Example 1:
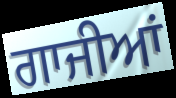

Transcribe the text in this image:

ਗਾਜੀਆਂ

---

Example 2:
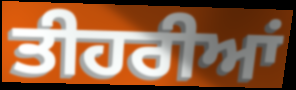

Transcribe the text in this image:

ਤੀਹਰੀਆਂ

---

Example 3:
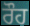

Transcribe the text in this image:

ਰੌਹ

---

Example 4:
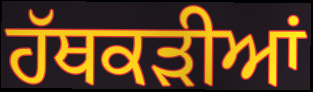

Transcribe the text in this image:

ਹੱਥਕੜੀਆਂ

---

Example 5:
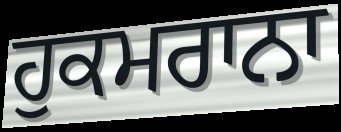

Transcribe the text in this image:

ਹੁਕਮਰਾਨਾ